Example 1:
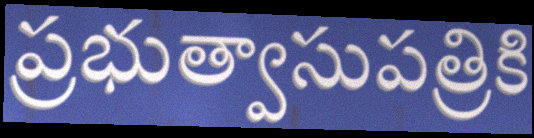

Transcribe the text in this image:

ప్రభుత్వాసుపత్రికి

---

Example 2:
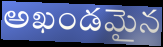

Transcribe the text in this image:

అఖండమైన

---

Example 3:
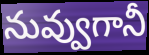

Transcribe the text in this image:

నువ్వుగానీ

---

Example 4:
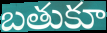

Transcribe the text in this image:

బతుకూ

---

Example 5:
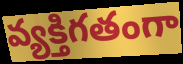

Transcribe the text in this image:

వ్యక్తిగతంగా